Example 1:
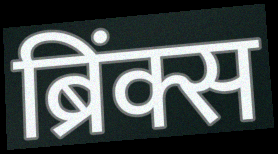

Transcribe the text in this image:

ब्रिंक्स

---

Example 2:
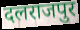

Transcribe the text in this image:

दलराजपुर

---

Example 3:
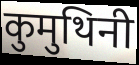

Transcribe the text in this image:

कुमुथिनी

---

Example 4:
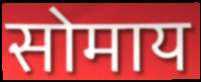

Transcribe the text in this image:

सोमाय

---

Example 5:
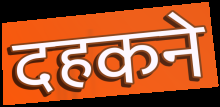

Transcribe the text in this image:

दहकने